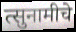
त्सुनामीचे